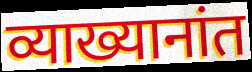
व्याख्यानांत